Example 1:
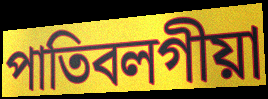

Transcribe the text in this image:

পাতিবলগীয়া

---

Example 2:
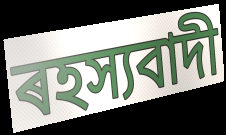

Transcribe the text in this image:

ৰহস্যবাদী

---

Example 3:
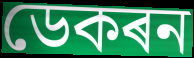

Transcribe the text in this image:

ডেকৰন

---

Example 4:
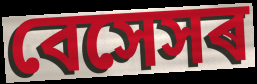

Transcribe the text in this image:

বেসেসৰ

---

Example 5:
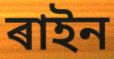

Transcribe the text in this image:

ৰাইন